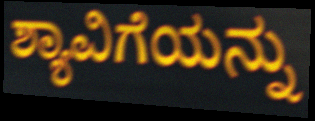
ಶ್ಯಾವಿಗೆಯನ್ನು